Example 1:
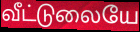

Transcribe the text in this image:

வீட்டுலையே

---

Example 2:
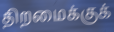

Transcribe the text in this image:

திறமைக்குக்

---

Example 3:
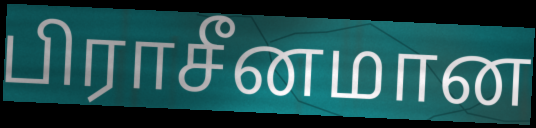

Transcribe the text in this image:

பிராசீனமான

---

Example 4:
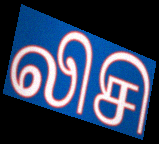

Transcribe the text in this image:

லிசி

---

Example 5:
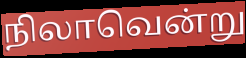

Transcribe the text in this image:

நிலாவென்று